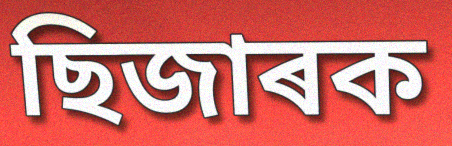
ছিজাৰক